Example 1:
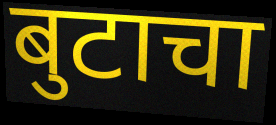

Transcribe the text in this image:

बुटाचा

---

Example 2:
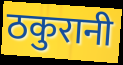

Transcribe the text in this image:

ठकुरानी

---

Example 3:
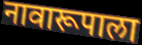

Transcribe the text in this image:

नावारूपाला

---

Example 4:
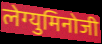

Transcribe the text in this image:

लेग्युमिनोजी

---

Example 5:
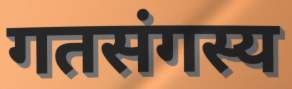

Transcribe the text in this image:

गतसंगस्य